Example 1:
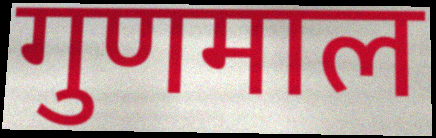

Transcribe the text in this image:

गुणमाल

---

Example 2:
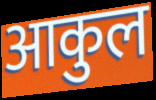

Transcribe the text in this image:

आकुल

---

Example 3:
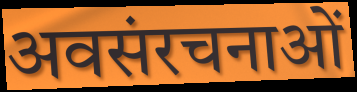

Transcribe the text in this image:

अवसंरचनाओं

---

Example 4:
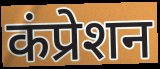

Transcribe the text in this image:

कंप्रेशन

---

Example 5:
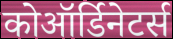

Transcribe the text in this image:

कोऑर्डिनेटर्स